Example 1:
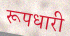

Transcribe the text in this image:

रूपधारी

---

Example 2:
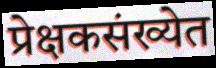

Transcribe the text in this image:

प्रेक्षकसंख्येत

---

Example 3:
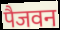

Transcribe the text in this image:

पैजवन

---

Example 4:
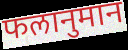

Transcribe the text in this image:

फलानुमान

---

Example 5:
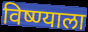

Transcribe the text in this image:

विष्ण्याला